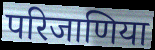
परिजाणिया